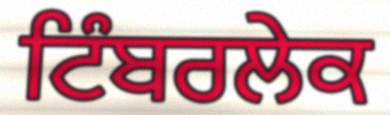
ਟਿੰਬਰਲੇਕ